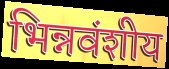
भिन्नवंशीय